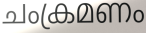
ചംക്രമണം